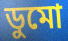
ডুমো